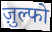
ज़ुल्फो